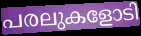
പരലുകളോടി